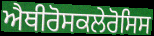
ਐਥੀਰੋਸਕਲੇਰੋਸਿਸ